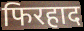
फिरहाद